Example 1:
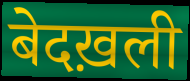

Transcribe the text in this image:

बेदख़ली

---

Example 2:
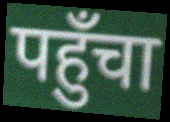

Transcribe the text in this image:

पहुँचा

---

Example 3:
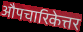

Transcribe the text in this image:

औपचारिकेत्तर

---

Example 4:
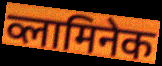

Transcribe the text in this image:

व्लामिनेक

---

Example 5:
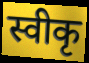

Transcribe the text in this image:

स्वीकृ